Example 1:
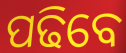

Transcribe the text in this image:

ପଢିବେ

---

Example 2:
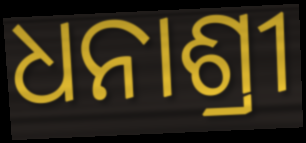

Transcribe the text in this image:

ଧନାଶ୍ରୀ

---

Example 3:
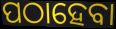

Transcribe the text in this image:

ପଠାହେବା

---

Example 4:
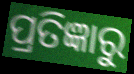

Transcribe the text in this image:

ପ୍ରତିଜ୍ଞାରୁ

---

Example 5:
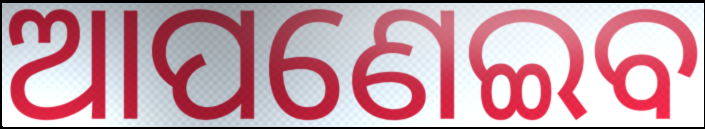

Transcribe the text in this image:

ଆପଣେଇବ